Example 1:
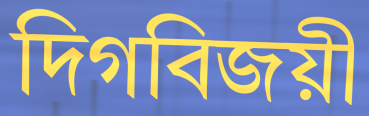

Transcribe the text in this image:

দিগবিজয়ী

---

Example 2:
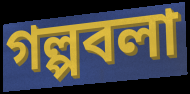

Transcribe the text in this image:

গল্পবলা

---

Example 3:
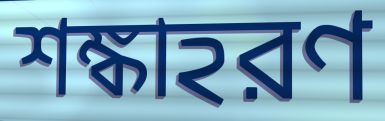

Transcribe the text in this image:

শঙ্কাহরণ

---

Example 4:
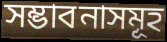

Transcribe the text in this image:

সম্ভাবনাসমূহ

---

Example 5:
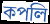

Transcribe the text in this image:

কপলি